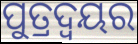
ପୁତ୍ରଦ୍ୱୟର